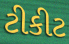
ટીકીટ